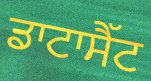
ਡਾਟਾਸੈੱਟ